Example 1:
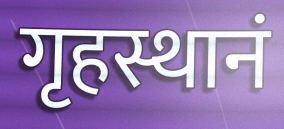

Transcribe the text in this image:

गृहस्थानं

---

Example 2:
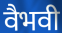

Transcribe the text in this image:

वैभवी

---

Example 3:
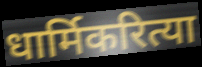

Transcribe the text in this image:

धार्मिकरित्या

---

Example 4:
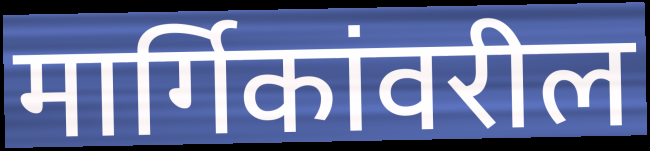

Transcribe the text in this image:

मार्गिकांवरील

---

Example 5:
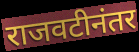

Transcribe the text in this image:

राजवटीनंतर